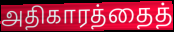
அதிகாரத்தைத்